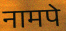
नामपे